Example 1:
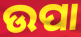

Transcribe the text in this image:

ଉପା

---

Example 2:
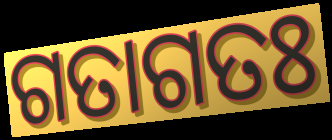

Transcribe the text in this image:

ଗତାଗତଃ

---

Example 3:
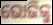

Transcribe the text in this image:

ଭୋଜିକୁ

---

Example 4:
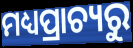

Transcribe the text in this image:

ମଧ୍ୟପ୍ରାଚ୍ୟରୁ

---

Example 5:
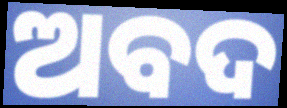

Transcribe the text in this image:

ଅବଦ